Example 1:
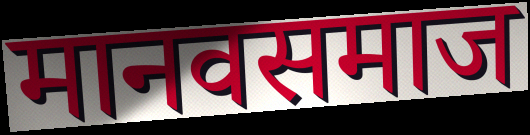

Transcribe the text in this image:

मानवसमाज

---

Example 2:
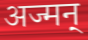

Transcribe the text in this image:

अज्मन्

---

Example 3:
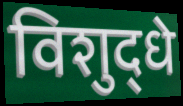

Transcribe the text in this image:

विशुद्धे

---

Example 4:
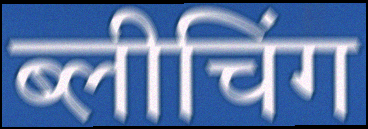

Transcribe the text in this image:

ब्लीचिंग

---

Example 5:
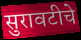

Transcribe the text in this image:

सुरावटीचे